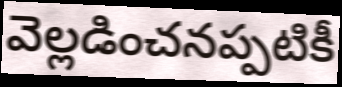
వెల్లడించనప్పటికీ